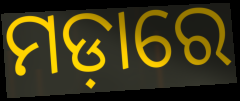
ମଡ଼ାରେ